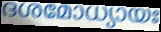
ദശമോധ്യായഃ